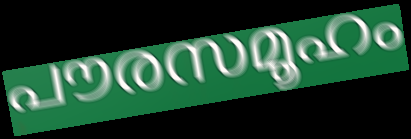
പൗരസമൂഹം